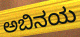
ಅಬಿನಯ